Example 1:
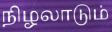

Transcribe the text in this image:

நிழலாடும்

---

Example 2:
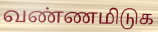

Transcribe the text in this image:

வண்ணமிடுக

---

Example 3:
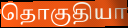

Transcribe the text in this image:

தொகுதியா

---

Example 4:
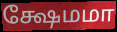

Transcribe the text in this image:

க்ஷேமமா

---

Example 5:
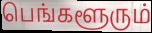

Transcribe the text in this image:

பெங்களூரும்